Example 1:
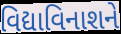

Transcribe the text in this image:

વિદ્યાવિનાશને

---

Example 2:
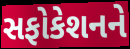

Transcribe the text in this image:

સફોકેશનને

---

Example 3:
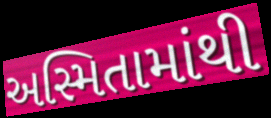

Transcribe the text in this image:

અસ્મિતામાંથી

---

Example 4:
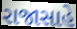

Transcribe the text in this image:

રાજાસાહે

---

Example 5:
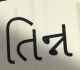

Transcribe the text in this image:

તિન્ન